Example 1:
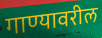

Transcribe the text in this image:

गाण्यावरील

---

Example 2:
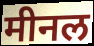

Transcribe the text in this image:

मीनल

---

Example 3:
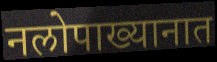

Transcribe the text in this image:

नलोपाख्यानात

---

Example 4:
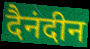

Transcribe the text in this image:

दैनंदीन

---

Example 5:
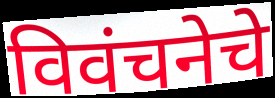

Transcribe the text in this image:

विवंचनेचे